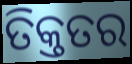
ତିକ୍ତତର